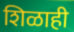
शिळाही